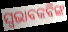
ସ୍ଵଭାବକବିଙ୍କ